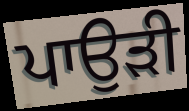
ਪਾਉੜੀ